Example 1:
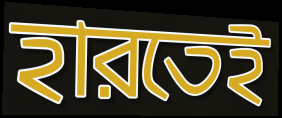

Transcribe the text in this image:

হারতেই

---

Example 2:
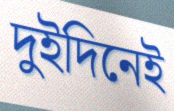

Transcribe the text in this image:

দুইদিনেই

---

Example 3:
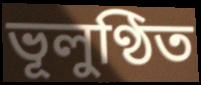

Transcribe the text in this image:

ভূলুণ্ঠিত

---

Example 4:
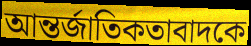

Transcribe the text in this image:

আন্তর্জাতিকতাবাদকে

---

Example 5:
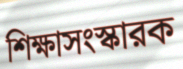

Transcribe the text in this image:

শিক্ষাসংস্কারক